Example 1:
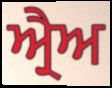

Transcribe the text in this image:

ਅ੍ਰੈਅ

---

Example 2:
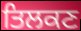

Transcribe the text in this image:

ਤਿਲਕਣ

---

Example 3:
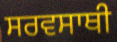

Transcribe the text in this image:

ਸਰਵਸਾਥੀ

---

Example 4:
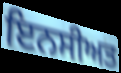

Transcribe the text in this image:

ਇਨਸੀਅਤ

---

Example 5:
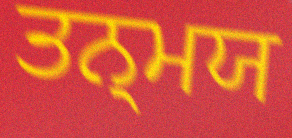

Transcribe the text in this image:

ਤਨ੍ਮਯ